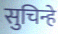
सुचिन्हे